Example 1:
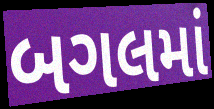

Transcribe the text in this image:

બગલમાં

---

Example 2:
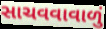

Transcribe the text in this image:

સાચવવાવાળું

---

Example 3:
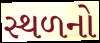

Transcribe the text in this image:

સ્થળનો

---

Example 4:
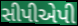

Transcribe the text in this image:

સીપીએપી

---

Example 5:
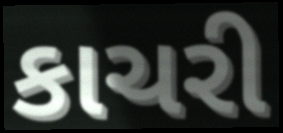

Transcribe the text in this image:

કાચરી